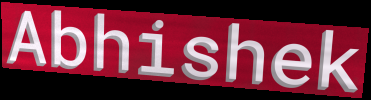
Abhishek